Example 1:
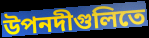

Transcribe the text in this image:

উপনদীগুলিতে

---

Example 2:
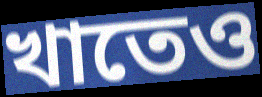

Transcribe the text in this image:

খাতেও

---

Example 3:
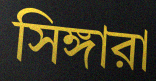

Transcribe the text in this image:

সিঙ্গারা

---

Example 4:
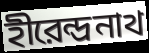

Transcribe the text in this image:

হীরেন্দ্রনাথ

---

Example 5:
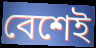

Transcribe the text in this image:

বেশেই